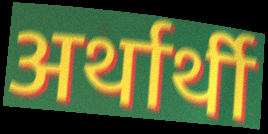
अर्थार्थी